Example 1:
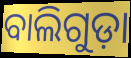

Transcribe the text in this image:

ବାଲିଗୁଡ଼ା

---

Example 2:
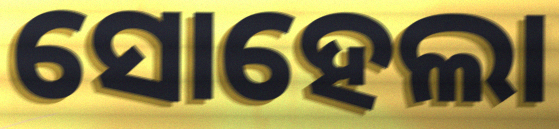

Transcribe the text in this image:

ସୋହେଲା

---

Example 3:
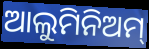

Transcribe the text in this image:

ଆଲୁମିନିଅମ୍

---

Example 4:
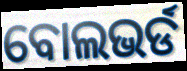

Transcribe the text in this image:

ବୋଲଭର୍ଡ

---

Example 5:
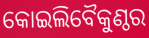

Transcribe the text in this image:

କୋଇଲିବୈକୁଣ୍ଠର